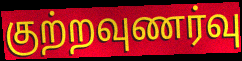
குற்றவுணர்வு